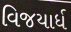
વિજયાર્ધ